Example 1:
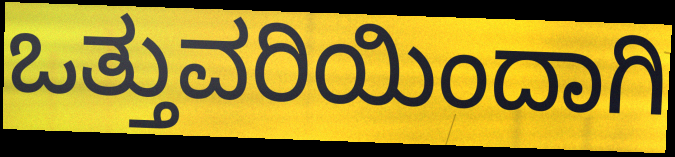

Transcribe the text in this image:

ಒತ್ತುವರಿಯಿಂದಾಗಿ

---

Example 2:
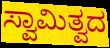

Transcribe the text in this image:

ಸ್ವಾಮಿತ್ವದ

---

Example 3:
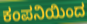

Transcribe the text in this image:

ಕಂಪನಿಯಿಂದ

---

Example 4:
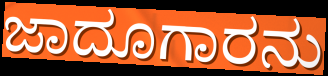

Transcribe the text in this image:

ಜಾದೂಗಾರನು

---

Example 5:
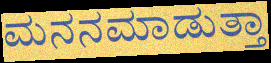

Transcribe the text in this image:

ಮನನಮಾಡುತ್ತಾ